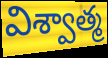
విశ్వాత్మ